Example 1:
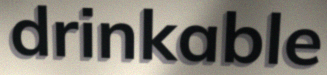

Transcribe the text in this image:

drinkable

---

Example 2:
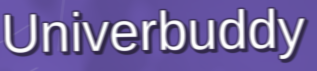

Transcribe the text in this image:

Univerbuddy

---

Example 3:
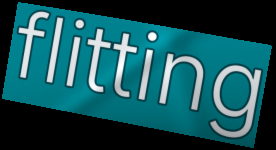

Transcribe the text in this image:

flitting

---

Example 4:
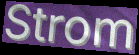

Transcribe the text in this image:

Strom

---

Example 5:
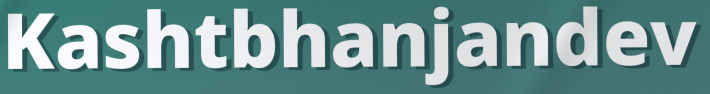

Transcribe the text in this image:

Kashtbhanjandev